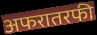
अफरातरफी